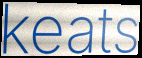
keats